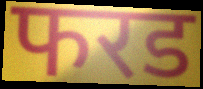
फरड